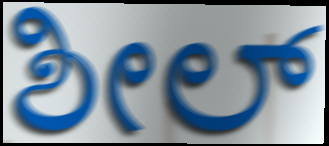
ಶೀಲ್